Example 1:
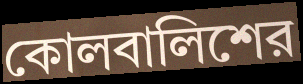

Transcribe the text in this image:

কোলবালিশের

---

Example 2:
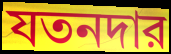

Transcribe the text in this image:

যতনদার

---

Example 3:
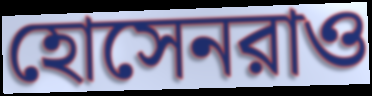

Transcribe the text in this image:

হোসেনরাও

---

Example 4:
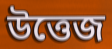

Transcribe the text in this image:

উত্তেজ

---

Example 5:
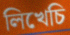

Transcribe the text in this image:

লিখেচি